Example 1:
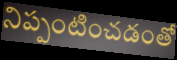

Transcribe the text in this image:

నిప్పంటించడంతో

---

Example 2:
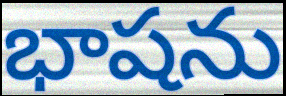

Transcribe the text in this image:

భాషను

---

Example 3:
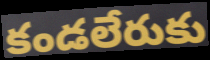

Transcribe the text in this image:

కండలేరుకు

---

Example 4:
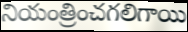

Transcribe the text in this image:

నియంత్రించగలిగాయి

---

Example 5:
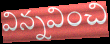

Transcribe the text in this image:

విన్నవించి